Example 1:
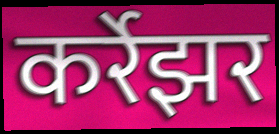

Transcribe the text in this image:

कर्रेझर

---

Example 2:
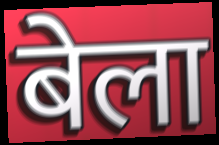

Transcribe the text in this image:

बेला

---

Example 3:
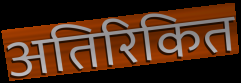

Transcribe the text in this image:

अतिरिकित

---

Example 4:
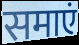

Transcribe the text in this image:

समाएं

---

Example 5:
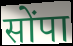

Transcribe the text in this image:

सोंपा